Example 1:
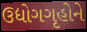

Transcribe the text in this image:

ઉદ્યોગગૃહોને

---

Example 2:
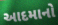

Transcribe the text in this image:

આદમાનો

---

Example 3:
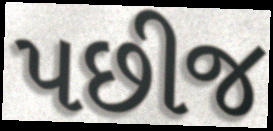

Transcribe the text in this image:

પછીજ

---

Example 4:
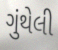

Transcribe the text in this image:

ગુંથેલી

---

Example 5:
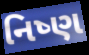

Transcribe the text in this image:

નિષ્ણ